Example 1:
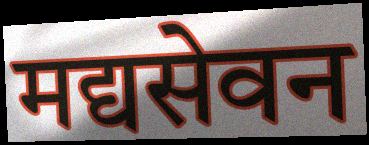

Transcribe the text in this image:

मद्यसेवन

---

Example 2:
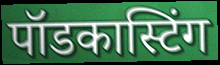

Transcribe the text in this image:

पॉडकास्टिंग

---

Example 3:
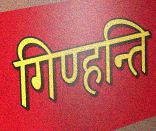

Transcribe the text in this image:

गिण्हन्ति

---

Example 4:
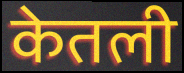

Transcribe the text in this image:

केतली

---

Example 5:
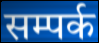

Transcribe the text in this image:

सम्‍पर्क